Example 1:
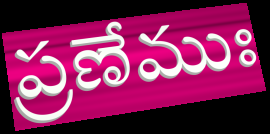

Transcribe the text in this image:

ప్రణేముః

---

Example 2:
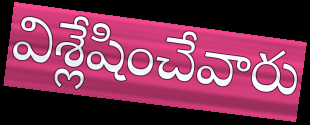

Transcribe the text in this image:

విశ్లేషించేవారు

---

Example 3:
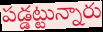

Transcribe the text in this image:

పడ్డట్టున్నారు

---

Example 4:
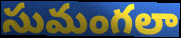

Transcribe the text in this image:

సుమంగలా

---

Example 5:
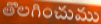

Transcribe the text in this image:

తొలగించుము